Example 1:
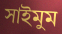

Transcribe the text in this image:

সাইমুম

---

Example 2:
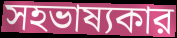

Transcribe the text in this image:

সহভাষ্যকার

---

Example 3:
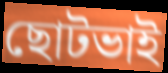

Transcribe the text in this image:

ছোটভাই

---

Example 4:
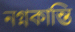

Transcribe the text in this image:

নগ্নকান্তি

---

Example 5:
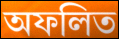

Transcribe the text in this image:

অফলিত